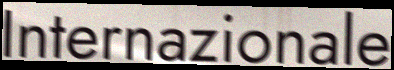
Internazionale